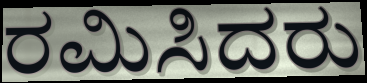
ರಮಿಸಿದರು